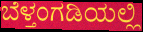
ಬೆಳ್ತಂಗಡಿಯಲ್ಲಿ